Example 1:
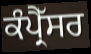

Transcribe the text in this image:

ਕੰਪ੍ਰੈੱਸਰ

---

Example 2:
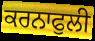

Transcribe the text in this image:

ਕਰਨਾਫੁਲੀ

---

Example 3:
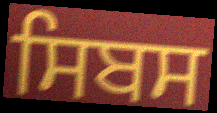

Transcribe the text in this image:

ਸਿਬਸ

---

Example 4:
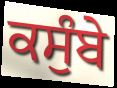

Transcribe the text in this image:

ਕਸੁੰਬੇ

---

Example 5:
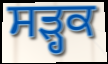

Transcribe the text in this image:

ਸੜ੍ਹਕ